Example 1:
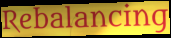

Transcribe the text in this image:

Rebalancing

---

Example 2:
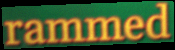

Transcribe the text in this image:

rammed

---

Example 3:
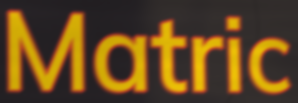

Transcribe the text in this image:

Matric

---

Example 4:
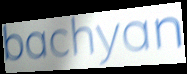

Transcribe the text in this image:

bachyan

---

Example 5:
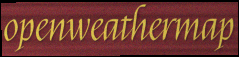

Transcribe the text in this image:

openweathermap